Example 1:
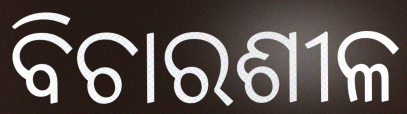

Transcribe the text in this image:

ବିଚାରଶୀଳ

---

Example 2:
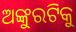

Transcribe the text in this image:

ଅଙ୍କୁରଟିକୁ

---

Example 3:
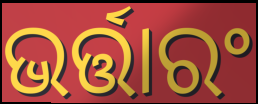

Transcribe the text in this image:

ଭର୍ତ୍ତାରଂ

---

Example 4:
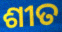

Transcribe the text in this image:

ଶୀତ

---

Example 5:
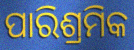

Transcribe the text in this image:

ପାରିଶ୍ରମିକ